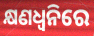
କ୍ଷଣଧ୍ୱନିରେ